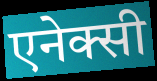
एनेक्‍सी